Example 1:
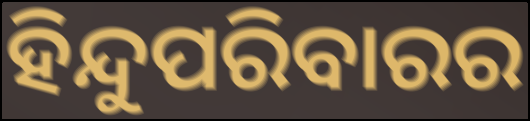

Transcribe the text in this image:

ହିନ୍ଦୁପରିବାରର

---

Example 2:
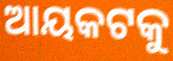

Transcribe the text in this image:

ଆୟକଟକୁ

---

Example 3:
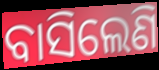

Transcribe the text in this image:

ବାସିଲେଣି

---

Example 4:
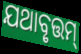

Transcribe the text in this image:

ଯଥାବୃତ୍ତମ୍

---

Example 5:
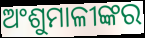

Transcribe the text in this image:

ଅଂଶୁମାଳୀଙ୍କର